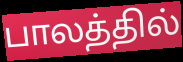
பாலத்தில்